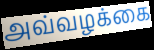
அவ்வழக்கை